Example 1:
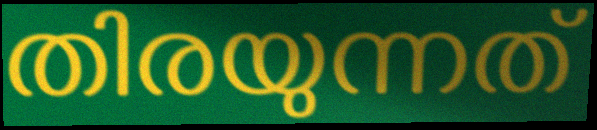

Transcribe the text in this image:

തിരയുന്നത്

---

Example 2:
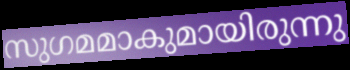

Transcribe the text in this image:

സുഗമമാകുമായിരുന്നു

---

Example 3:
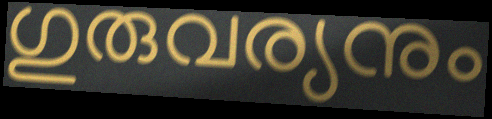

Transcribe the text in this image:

ഗുരുവര്യനും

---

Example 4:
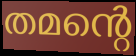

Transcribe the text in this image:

തമന്റെ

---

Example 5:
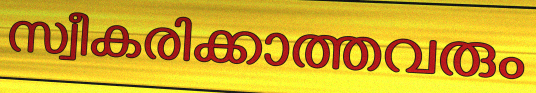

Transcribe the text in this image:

സ്വീകരിക്കാത്തവരും